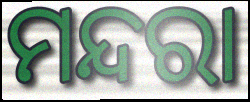
ମନ୍ଦରା